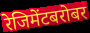
रेजिमेंटबरोबर